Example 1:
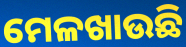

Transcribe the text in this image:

ମେଳଖାଉଛି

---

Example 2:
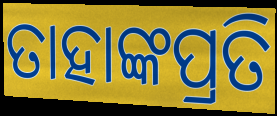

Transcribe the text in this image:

ତାହାଙ୍କପ୍ରତି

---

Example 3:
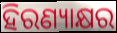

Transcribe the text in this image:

ହିରଣ୍ୟାକ୍ଷର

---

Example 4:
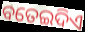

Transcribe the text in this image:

ବତେଇଦିଏ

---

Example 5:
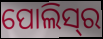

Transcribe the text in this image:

ପୋଲିସ୍‍ର